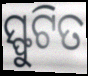
ସ୍ଫୁଟିତ